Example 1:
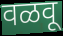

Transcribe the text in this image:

वळवू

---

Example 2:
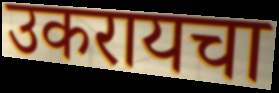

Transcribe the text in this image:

उकरायचा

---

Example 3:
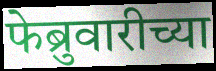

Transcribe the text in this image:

फेब्रुवारीच्या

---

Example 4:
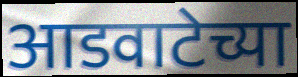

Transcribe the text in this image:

आडवाटेच्या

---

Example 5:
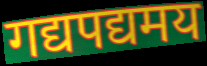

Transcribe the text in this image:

गद्यपद्यमय